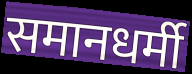
समानधर्मी